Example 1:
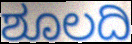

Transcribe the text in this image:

ಶೂಲದಿ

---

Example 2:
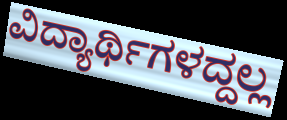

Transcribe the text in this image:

ವಿದ್ಯಾರ್ಥಿಗಳದ್ದಲ್ಲ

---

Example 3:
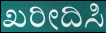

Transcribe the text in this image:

ಖರೀದಿಸಿ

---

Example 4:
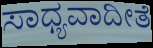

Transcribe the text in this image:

ಸಾಧ್ಯವಾದೀತೆ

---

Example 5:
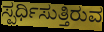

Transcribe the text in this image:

ಸ್ಪರ್ಧಿಸುತ್ತಿರುವ